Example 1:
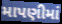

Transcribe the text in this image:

માપણીમાં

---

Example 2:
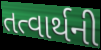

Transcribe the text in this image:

તત્વાર્થની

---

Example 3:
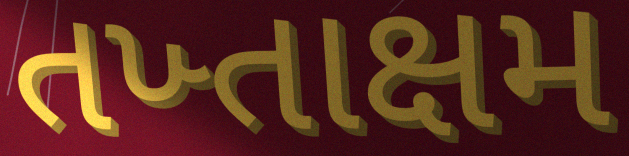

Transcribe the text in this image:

તખ્તાક્ષમ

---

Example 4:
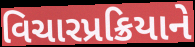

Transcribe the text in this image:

વિચારપ્રક્રિયાને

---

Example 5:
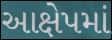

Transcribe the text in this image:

આક્ષેપમાં